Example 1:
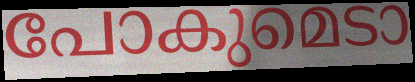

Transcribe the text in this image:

പോകുമെടാ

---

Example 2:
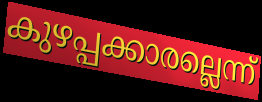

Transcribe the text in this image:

കുഴപ്പക്കാരല്ലെന്ന്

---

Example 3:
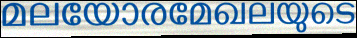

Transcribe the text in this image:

മലയോരമേഖലയുടെ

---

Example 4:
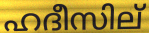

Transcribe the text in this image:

ഹദീസില്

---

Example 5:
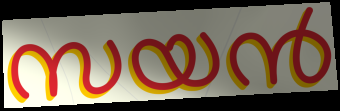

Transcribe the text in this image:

സയൻ